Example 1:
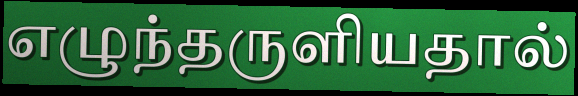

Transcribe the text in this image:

எழுந்தருளியதால்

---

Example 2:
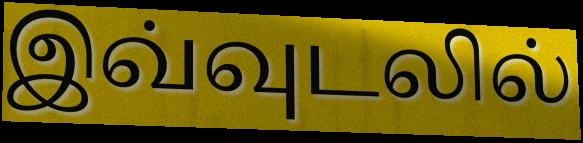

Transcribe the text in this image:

இவ்வுடலில்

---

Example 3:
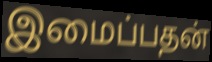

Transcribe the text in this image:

இமைப்பதன்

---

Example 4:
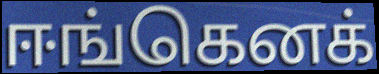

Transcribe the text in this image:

ஈங்கெனக்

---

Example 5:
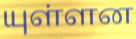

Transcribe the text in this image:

யுள்ளன